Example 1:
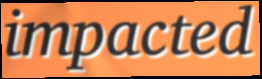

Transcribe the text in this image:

impacted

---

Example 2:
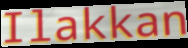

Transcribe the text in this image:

Ilakkan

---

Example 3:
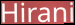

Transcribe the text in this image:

Hirani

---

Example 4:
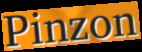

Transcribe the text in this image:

Pinzon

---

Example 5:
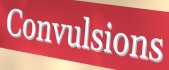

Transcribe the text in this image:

Convulsions